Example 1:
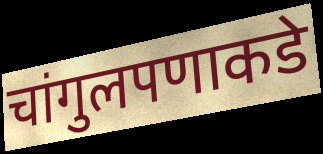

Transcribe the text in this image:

चांगुलपणाकडे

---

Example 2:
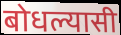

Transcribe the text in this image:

बोधल्यासी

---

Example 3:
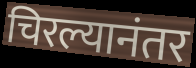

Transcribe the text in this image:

चिरल्यानंतर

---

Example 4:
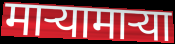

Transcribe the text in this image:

माऱ्यामाऱ्या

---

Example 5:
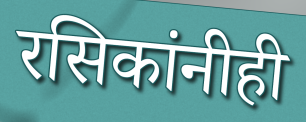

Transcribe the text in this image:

रसिकांनीही